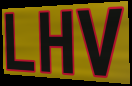
LHV